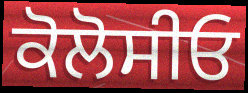
ਕੋਲੋਸੀਓ